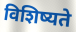
विशिष्यते